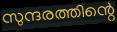
സുന്ദരത്തിന്റെ